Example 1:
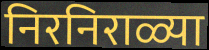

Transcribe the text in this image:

निरनिराळ्या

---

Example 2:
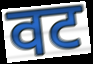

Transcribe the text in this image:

वट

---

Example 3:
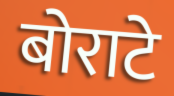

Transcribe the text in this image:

बोराटे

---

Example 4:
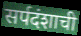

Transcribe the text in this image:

सर्पदंशाची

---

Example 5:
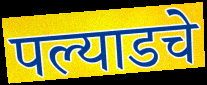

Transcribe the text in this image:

पल्याडचे